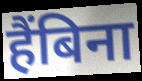
हैंबिना